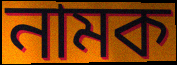
নামক